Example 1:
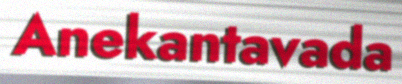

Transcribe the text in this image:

Anekantavada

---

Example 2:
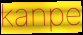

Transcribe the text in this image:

kanpe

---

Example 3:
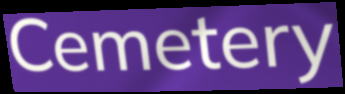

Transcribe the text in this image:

Cemetery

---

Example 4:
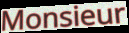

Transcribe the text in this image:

Monsieur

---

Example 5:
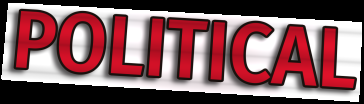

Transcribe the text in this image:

POLITICAL